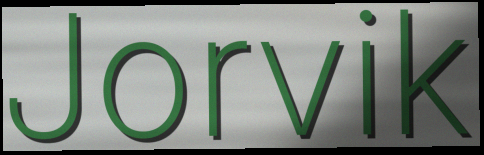
Jorvik